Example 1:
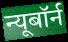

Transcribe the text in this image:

न्यूबॉर्न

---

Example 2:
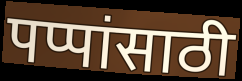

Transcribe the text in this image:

पप्पांसाठी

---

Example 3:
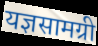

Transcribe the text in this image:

यज्ञसामग्री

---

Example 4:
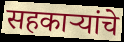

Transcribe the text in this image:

सहकार्‍यांचे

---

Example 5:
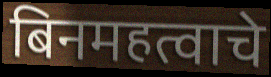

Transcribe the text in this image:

बिनमहत्वाचे